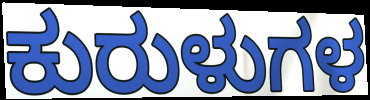
ಕುರುಳುಗಳ